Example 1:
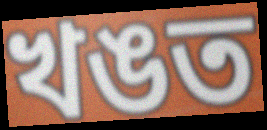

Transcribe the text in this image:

খঙত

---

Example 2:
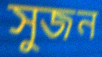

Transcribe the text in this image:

সুজন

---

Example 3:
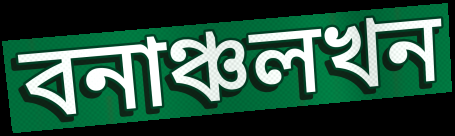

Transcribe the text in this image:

বনাঞ্চলখন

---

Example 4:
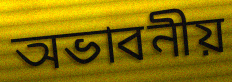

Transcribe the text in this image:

অভাবনীয়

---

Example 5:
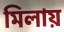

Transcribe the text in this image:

মিলায়